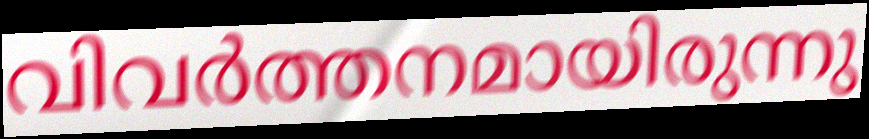
വിവർത്തനമായിരുന്നു